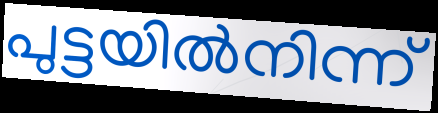
പുട്ടയിൽനിന്ന്